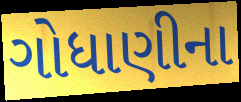
ગોધાણીના